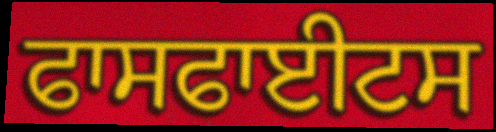
ਫਾਸਫਾਈਟਸ